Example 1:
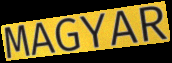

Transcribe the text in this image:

MAGYAR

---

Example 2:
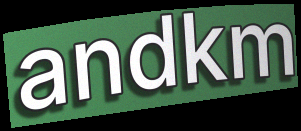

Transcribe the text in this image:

andkm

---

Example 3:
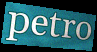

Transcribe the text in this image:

petro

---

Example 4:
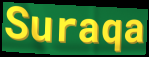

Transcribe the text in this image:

Suraqa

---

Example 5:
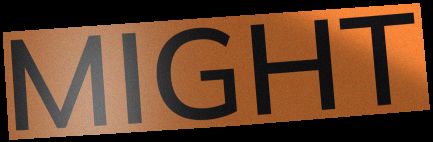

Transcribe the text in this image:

MIGHT